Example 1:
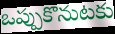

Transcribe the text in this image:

ఒప్పుకొనుటకు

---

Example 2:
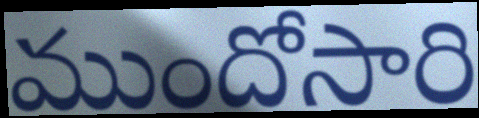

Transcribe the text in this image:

ముందోసారి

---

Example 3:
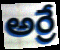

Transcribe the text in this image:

అర్రే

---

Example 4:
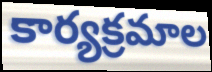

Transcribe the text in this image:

కార్యక్రమాల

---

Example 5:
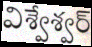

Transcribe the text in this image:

విశ్వేశ్వర్